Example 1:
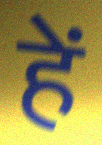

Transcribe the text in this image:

हें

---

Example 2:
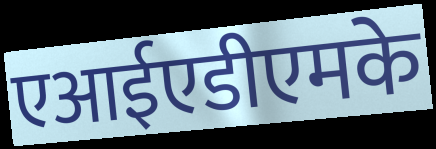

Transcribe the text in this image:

एआईएडीएमके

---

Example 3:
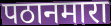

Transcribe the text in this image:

पठानमारा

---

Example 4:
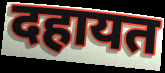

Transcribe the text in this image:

दहायत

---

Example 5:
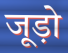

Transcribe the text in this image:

जूड़ो